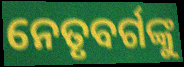
ନେତୃବର୍ଗଙ୍କୁ